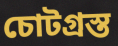
চোটগ্রস্ত